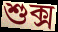
শুক্স